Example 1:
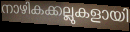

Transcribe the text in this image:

നാഴികക്കല്ലുകളായി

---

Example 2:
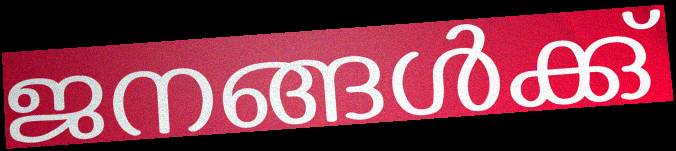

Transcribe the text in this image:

ജനങ്ങൾക്കു്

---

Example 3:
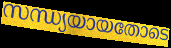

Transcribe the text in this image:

സന്ധ്യയായതോടെ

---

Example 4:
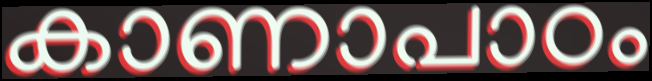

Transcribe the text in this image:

കാണാപാഠം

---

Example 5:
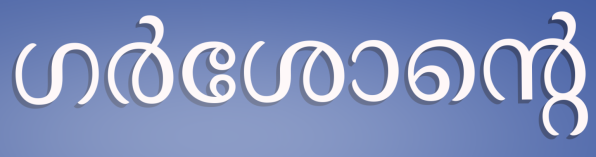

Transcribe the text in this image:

ഗർശോന്റെ